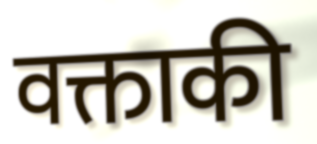
वक्ताकी